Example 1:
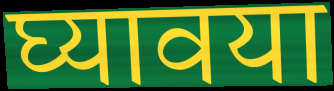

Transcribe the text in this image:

घ्यावया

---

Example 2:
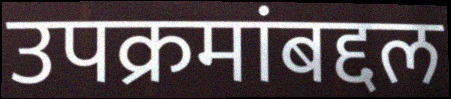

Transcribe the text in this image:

उपक्रमांबद्दल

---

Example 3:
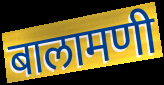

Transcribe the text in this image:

बालामणी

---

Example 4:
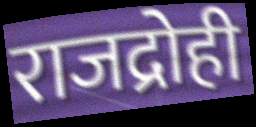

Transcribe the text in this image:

राजद्रोही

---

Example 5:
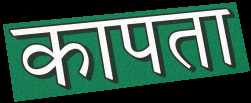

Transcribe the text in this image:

कापता